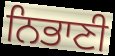
ਨਿਭਾਣੀ